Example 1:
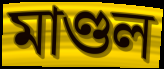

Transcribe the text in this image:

মাণ্ডল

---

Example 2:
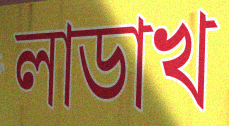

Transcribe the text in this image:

লাডাখ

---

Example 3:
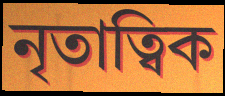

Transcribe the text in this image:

নৃতাত্বিক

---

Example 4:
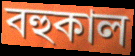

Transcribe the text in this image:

বহুকাল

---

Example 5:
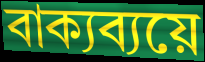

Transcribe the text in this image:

বাক্যব্যয়ে